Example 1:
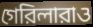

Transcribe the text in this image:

গেরিলারাও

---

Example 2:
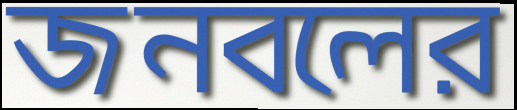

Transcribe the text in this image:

জনবলের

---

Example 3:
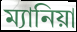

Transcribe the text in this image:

ম্যানিয়া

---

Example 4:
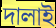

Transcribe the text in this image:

দালাই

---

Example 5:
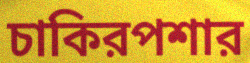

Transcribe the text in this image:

চাকিরপশার